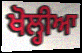
ਖੋਲ੍ਹੀਆ